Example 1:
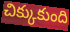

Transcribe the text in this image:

చిక్కుకుంది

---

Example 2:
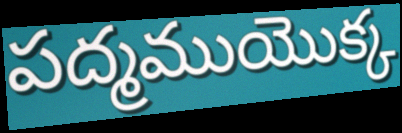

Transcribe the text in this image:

పద్మముయొక్క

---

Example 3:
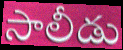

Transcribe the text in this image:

సాలీడు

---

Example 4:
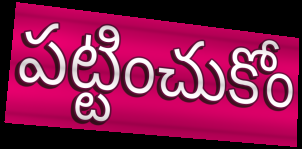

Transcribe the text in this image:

పట్టించుకోం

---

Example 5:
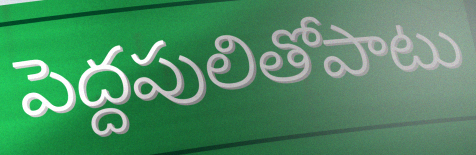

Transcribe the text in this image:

పెద్దపులితోపాటు